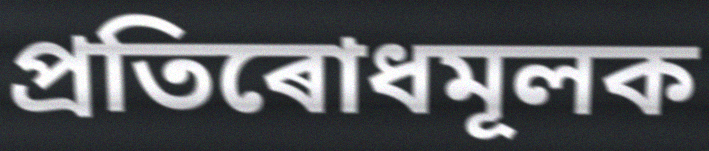
প্ৰতিৰোধমূলক